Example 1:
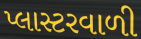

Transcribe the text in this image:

પ્લાસ્ટરવાળી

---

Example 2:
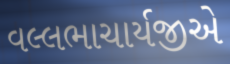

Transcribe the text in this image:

વલ્લભાચાર્યજીએ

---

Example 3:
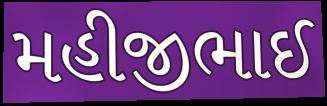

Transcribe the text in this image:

મહીજીભાઈ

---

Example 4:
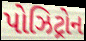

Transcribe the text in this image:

પોઝિટ્રોન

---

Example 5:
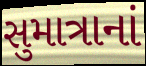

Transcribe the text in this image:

સુમાત્રાનાં